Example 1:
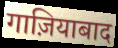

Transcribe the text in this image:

गाज़ियाबाद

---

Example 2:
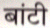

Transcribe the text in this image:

बांटी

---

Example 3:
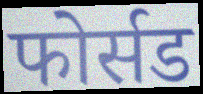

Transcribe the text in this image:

फोर्सड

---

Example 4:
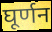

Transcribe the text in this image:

घूर्णन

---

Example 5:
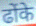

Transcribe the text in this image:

ढोंके